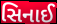
સિનાઈ